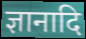
ज्ञानादि